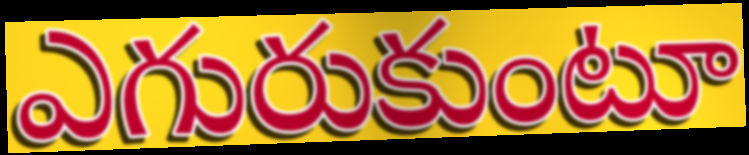
ఎగురుకుంటూ